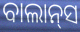
ବାଲାନ୍‌ସ